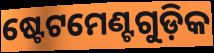
ଷ୍ଟେଟମେଣ୍ଟଗୁଡ଼ିକ